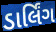
ડાર્લિંગ